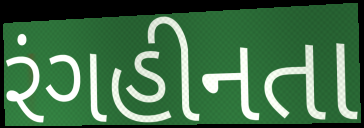
રંગહીનતા